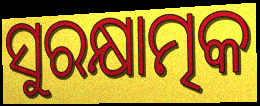
ସୁରକ୍ଷାତ୍ମକ